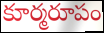
కూర్మరూపం